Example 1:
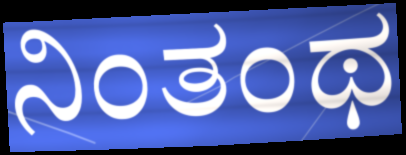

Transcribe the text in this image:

ನಿಂತಂಥ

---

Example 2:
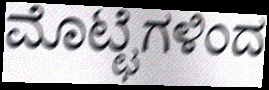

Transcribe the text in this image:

ಮೊಟ್ಟೆಗಳಿಂದ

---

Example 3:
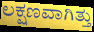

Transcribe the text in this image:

ಲಕ್ಷಣವಾಗಿತ್ತು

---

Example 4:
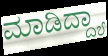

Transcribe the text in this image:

ಮಾಡಿದ್ದ್ಯಾ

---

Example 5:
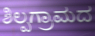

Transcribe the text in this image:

ಶಿಲ್ಪಗ್ರಾಮದ